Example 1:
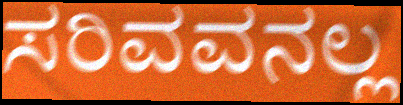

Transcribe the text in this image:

ಸರಿವವನಲ್ಲ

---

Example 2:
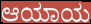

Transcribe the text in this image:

ಆಯಾಯ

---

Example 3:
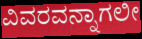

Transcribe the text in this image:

ವಿವರವನ್ನಾಗಲೀ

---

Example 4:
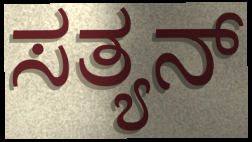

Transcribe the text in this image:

ಸತ್ಯನ್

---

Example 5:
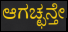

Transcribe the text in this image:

ಆಗಚ್ಛನ್ತೇ